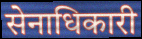
सेनाधिकारी